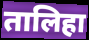
तालिहा